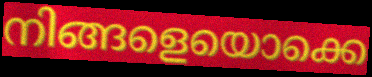
നിങ്ങളെയൊക്കെ